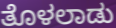
ತೊಳಲಾಡು